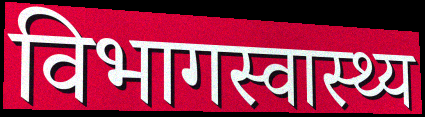
विभागस्वास्थ्य